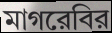
মাগরেবির